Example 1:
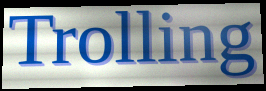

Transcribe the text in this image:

Trolling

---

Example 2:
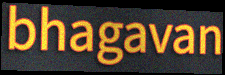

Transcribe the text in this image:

bhagavan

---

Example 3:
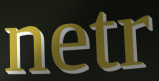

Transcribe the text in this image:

netr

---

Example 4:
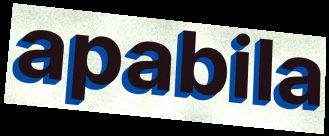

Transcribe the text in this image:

apabila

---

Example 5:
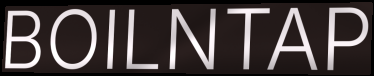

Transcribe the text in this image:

BOILNTAP